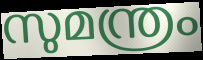
സുമന്ത്രം